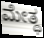
ಮೇತ್ಥ